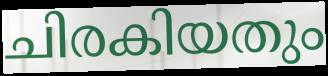
ചിരകിയതും